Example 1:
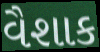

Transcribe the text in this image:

વૈશાક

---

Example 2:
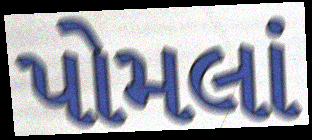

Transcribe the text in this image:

પોમલાં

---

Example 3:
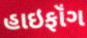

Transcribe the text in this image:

હાઇફૉંગ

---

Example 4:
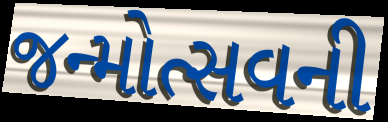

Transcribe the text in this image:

જન્મોત્સવની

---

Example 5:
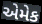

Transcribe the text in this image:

એમેક